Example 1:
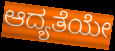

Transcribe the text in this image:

ಆದ್ಯತೆಯೇ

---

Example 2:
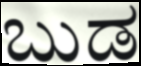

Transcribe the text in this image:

ಬುಡ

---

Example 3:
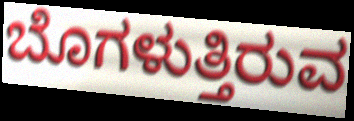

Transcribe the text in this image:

ಬೊಗಳುತ್ತಿರುವ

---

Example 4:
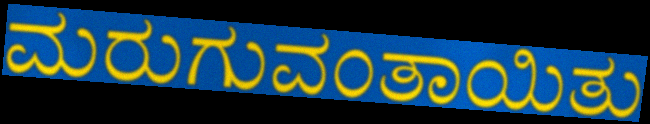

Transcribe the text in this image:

ಮರುಗುವಂತಾಯಿತು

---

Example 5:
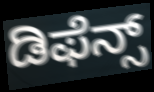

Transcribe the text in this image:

ಡಿಫೆನ್ಸ್